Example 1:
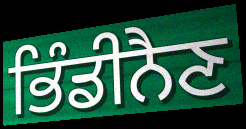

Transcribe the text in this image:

ਭਿੰਡੀਨੈਣ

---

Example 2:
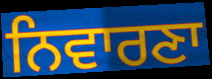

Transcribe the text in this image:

ਨਿਵਾਰਣਾ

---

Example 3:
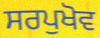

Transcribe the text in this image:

ਸਰਪੁਖੋਵ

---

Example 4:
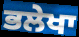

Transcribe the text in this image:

ਭਲੇਖਾ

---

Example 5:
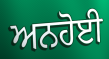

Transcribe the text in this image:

ਅਨਹੋਈ